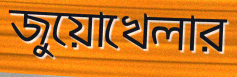
জুয়োখেলার